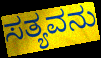
ಸತ್ಯವನು